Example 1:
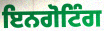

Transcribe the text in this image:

ਇਨਗੋਟਿੰਗ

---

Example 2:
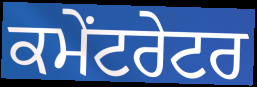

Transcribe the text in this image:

ਕਮੇਂਟਰੇਟਰ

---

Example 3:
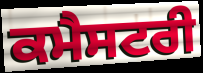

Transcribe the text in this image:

ਕਮੈਸਟਰੀ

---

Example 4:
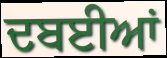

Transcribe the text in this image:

ਦਬਈਆਂ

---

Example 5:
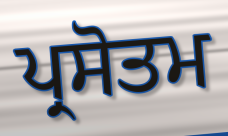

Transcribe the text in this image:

ਪ੍ਰਸੋਤਮ